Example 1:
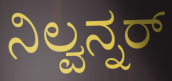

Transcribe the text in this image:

ನಿಲ್ವನ್ನರ್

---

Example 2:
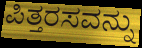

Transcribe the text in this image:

ಪಿತ್ತರಸವನ್ನು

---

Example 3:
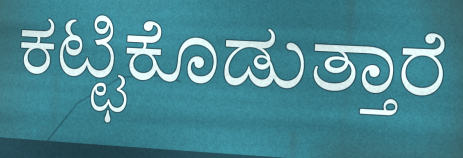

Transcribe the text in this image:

ಕಟ್ಟಿಕೊಡುತ್ತಾರೆ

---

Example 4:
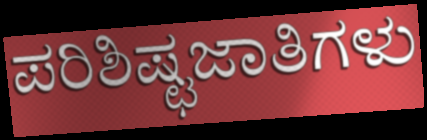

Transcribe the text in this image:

ಪರಿಶಿಷ್ಟಜಾತಿಗಳು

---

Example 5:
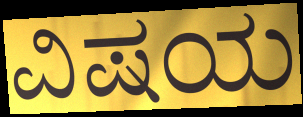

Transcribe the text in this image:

ವಿಷಯ